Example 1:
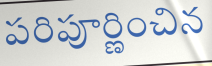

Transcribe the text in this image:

పరిపూర్ణించిన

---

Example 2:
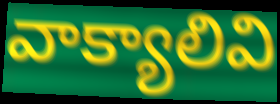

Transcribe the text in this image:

వాక్యాలివి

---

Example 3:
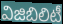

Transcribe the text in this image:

విజిబిలిటీ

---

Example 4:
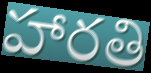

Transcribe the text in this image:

హారతి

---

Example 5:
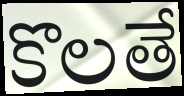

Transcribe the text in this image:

కొలతే